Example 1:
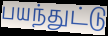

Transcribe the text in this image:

பயந்துட்டு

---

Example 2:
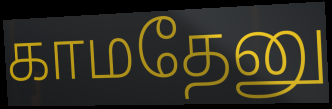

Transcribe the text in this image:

காமதேனு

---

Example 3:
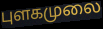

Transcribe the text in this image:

புளகமுலை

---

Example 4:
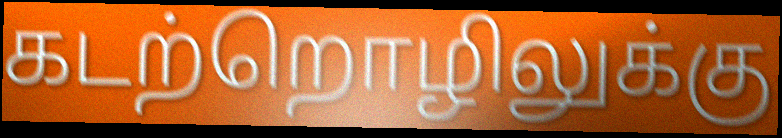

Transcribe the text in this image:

கடற்றொழிலுக்கு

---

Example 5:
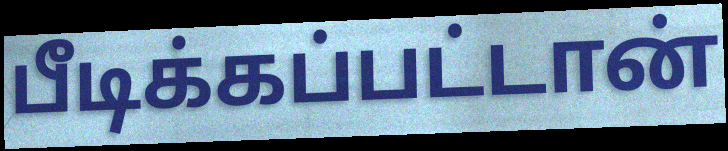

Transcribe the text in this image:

பீடிக்கப்பட்டான்